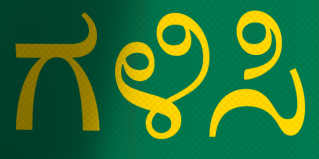
ಗಳಿಸಿ